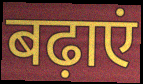
बढ़ाएं